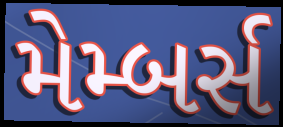
મેમ્બર્સ